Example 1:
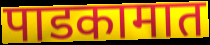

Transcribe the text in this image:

पाडकामात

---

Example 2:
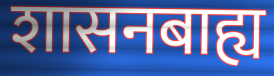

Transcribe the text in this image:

शासनबाह्य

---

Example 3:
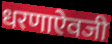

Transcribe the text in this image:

धरणाऐवजी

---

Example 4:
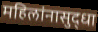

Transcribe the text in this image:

महिलांनासुद्धा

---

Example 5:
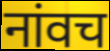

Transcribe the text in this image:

नांवच